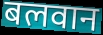
बलवान